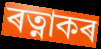
ৰত্নাকৰ